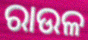
ରାଉଳ